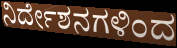
ನಿರ್ದೇಶನಗಳಿಂದ